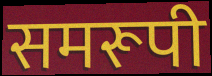
समरूपी